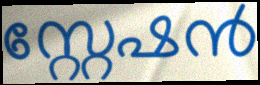
സ്റ്റേഷൻ